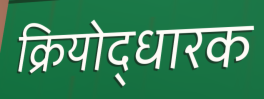
क्रियोद्धारक